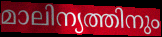
മാലിന്യത്തിനും